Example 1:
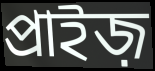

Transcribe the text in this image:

প্রাইজ়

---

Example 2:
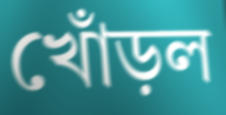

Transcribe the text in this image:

খোঁড়ল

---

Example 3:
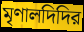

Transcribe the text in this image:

মৃণালদিদির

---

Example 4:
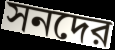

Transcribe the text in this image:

সনদের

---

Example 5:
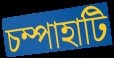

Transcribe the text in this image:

চম্পাহাটি